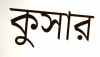
কুসার